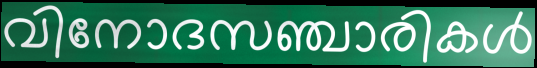
വിനോദസഞ്ചാരികൾ